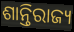
ଶାନ୍ତିରାଜ୍ୟ